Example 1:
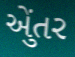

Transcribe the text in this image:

એુંતર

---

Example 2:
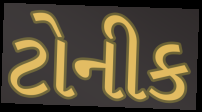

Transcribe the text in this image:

ટોનીક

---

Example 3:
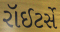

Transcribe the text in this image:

રૉઈટર્સે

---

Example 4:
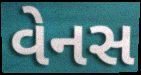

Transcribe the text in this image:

વેનસ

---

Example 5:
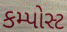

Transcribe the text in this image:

કમ્પોસ્ટ